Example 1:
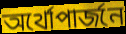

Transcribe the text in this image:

অর্থোপার্জনে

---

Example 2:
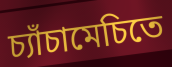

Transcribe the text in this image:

চ্যাঁচামেচিতে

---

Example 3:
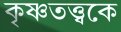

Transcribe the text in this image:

কৃষ্ণতত্ত্বকে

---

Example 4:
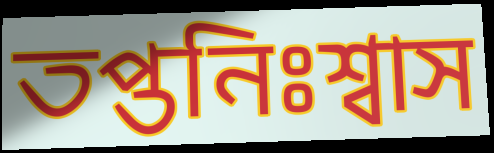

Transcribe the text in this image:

তপ্তনিঃশ্বাস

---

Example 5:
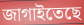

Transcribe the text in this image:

জাগাইতেছে